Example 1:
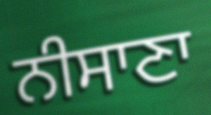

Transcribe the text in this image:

ਨੀਸਾਣਾ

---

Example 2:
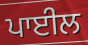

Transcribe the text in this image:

ਪਾਈਲ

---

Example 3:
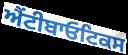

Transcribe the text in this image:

ਐਂਟੀਬਾਓਟਿਕਸ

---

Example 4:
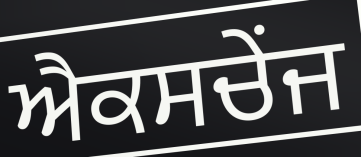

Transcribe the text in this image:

ਐਕਸਚੇਂਜ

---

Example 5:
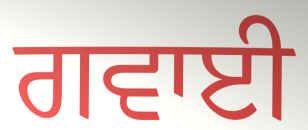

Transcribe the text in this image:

ਗਵਾਈ